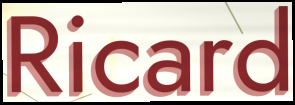
Ricard